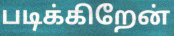
படிக்கிறேன்